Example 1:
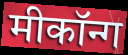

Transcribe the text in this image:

मीकॉन्ग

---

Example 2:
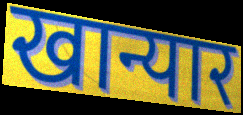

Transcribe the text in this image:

खान्यार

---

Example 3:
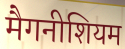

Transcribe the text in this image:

मैगनीशियम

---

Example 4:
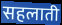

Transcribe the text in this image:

सहलाती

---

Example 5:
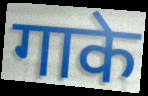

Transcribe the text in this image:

गाके